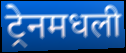
ट्रेनमधली